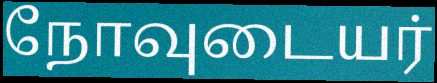
நோவுடையர்